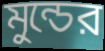
মুন্ডের